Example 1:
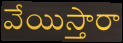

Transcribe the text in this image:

వేయిస్తారా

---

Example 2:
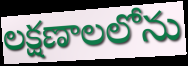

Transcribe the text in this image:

లక్షణాలలోను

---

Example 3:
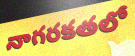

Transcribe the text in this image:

నాగరకతలో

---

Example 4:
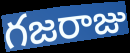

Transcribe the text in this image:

గజరాజు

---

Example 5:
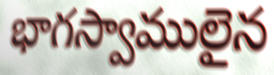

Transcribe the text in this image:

భాగస్వాములైన